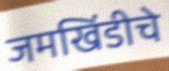
जमखिंडीचे